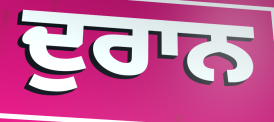
ਦੁਰਾਨ